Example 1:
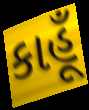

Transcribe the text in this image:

કાહૂઁ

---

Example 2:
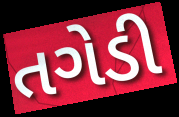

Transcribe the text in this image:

તગેડી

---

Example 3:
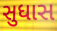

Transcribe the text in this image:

સુધાસ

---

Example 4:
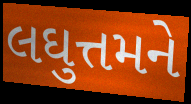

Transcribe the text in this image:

લઘુત્તમને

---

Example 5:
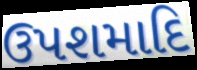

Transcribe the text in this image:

ઉપશમાદિ